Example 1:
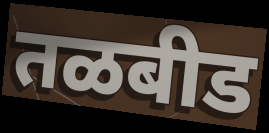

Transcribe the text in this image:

तळबीड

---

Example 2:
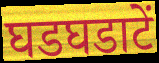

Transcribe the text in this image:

घडघडाटें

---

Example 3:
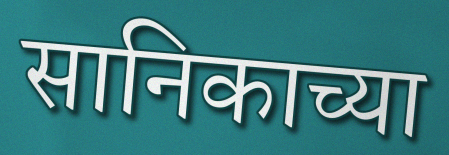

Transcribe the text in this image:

सानिकाच्या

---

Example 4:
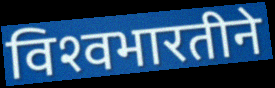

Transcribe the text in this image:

विश्वभारतीने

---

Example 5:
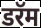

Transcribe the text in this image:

डरॅम